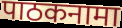
पाठकनामा